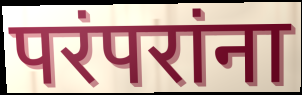
परंपरांना